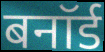
बनॉर्ड